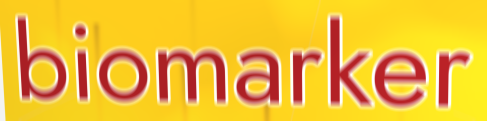
biomarker